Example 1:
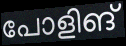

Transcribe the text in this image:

പോളിങ്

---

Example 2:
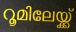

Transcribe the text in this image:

റൂമിലേയ്ക്ക്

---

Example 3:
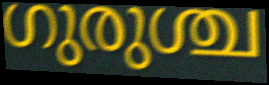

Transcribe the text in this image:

ഗുരുശ്ച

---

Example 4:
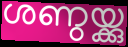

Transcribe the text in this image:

ശണ്ഠയ്ക്കു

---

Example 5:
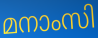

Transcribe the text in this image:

മനാംസി